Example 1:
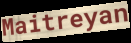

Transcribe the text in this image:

Maitreyan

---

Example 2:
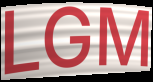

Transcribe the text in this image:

LGM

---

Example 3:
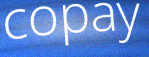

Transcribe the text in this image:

copay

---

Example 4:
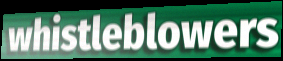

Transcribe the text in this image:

whistleblowers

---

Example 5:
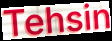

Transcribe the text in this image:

Tehsin